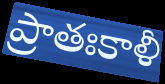
ప్రాతఃకాళీ